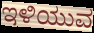
ಇಳಿಯುವ